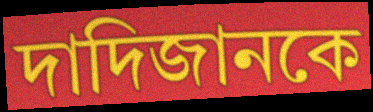
দাদিজানকে